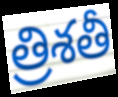
త్రిశతీ